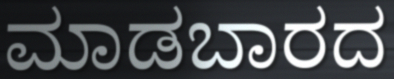
ಮಾಡಬಾರದ